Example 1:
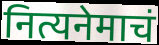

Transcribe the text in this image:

नित्यनेमाचं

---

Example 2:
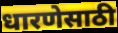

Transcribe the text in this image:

धारणेसाठी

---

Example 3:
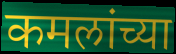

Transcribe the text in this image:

कमलांच्या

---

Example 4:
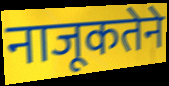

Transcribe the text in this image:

नाजूकतेने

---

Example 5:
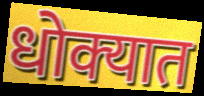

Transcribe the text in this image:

धोक्‍यात